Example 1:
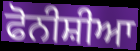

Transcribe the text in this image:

ਫੋਨੀਸ਼ੀਆ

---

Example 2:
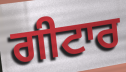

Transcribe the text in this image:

ਗੀਟਾਰ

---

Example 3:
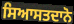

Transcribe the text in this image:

ਸਿਆਸਤਦਾਨੋ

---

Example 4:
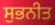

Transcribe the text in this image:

ਸੁਭਨੀਤ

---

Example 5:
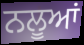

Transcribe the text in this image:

ਨਲੂਆਂ